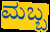
ಮಬ್ಬ